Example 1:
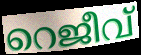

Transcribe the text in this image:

റെജീവ്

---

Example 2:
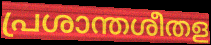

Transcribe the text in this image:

പ്രശാന്തശീതള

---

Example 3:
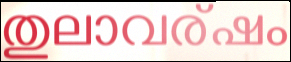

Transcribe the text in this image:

തുലാവര്ഷം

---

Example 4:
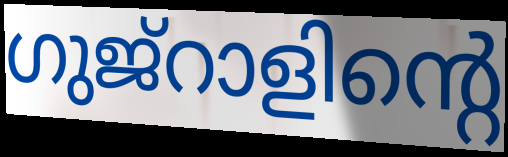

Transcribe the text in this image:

ഗുജ്റാളിന്റെ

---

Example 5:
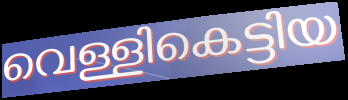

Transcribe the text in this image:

വെള്ളികെട്ടിയ